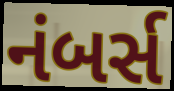
નંબર્સ